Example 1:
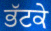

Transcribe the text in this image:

ਭੱਟਕੇ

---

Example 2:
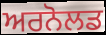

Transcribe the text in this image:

ਅਰਨੋਲਡ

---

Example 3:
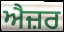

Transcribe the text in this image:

ਐਜ਼ਰ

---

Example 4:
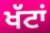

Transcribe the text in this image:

ਖੱਟਾਂ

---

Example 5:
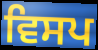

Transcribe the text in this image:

ਵਿਸਪ